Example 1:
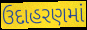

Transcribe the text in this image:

ઉદાહરણમાં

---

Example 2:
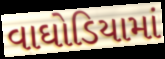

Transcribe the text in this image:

વાઘોડિયામાં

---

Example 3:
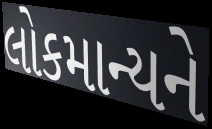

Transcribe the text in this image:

લોકમાન્યને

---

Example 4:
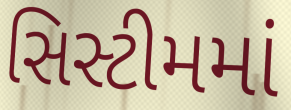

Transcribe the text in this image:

સિસ્ટીમમાં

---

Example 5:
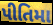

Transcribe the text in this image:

પીતિમા